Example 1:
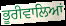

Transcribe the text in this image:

ਭੂਰੀਵਾਲਿਆਂ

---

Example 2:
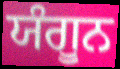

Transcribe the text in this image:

ਯੰਗੂਨ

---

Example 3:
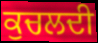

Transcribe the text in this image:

ਕੁਚਲਦੀ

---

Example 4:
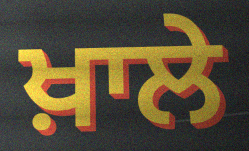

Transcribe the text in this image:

ਖ਼ਾਲੇ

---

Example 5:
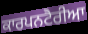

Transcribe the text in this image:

ਕਾਰਪਨਟੈਰੀਆ